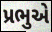
પ્રભુએ